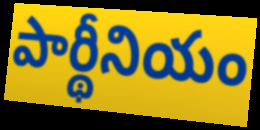
పార్థీనియం